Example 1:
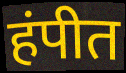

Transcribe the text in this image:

हंपीत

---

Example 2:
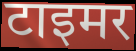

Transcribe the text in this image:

टाइमर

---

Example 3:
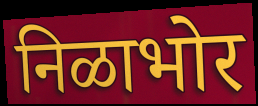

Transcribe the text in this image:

निळाभोर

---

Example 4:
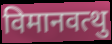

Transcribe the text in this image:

विमानवत्थु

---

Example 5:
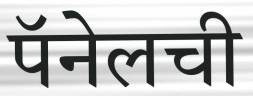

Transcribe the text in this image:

पॅनेलची